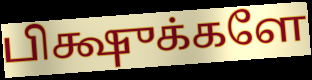
பிக்ஷுக்களே